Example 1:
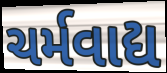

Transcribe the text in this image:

ચર્મવાદ્ય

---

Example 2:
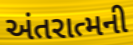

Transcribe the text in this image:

અંતરાત્મની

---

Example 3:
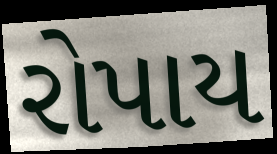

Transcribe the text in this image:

રોપાય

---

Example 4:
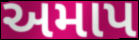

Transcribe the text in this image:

અમાપ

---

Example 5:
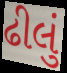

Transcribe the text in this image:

ઢીલું